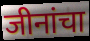
जीनांचा